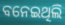
ବନେଇଥିଲି